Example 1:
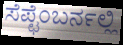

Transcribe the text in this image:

ಸೆಪ್ಟೆಂಬರ್ನಲ್ಲಿ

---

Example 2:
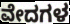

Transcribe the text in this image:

ವೇದಗಳ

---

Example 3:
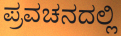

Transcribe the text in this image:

ಪ್ರವಚನದಲ್ಲಿ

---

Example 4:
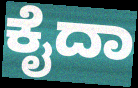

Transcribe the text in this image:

ಕೈದಾ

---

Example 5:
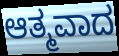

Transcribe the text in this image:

ಆತ್ಮವಾದ